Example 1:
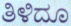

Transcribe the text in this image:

ತಿಳಿದೂ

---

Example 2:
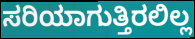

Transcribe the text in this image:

ಸರಿಯಾಗುತ್ತಿರಲಿಲ್ಲ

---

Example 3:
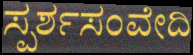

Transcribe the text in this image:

ಸ್ಪರ್ಶಸಂವೇದಿ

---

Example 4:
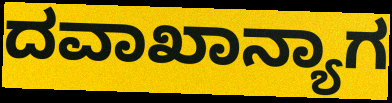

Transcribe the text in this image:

ದವಾಖಾನ್ಯಾಗ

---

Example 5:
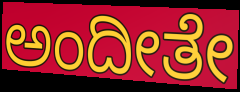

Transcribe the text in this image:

ಅಂದೀತೇ